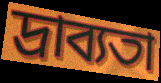
দ্রাব্যতা